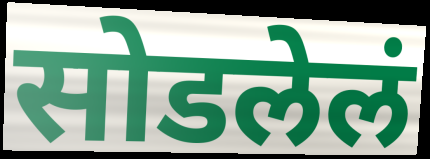
सोडलेलं